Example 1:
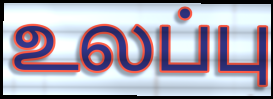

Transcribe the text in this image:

உலப்பு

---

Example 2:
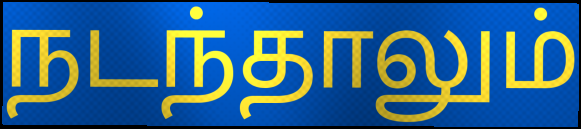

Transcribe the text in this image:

நடந்தாலும்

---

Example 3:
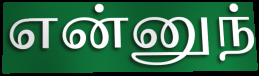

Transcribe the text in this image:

என்னுந்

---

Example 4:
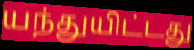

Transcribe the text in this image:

யந்துயிட்டது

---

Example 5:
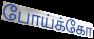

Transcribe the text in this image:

போய்க்கோ